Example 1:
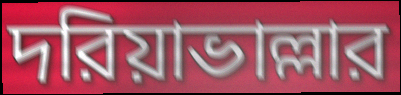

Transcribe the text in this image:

দরিয়াভাল্লার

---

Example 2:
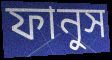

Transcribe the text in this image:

ফানুস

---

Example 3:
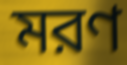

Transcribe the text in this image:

মরণ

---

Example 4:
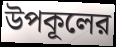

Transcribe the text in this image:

উপকূলের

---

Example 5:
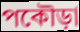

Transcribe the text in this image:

পকৌড়া